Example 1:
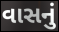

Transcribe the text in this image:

વાસનું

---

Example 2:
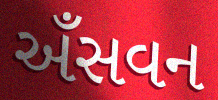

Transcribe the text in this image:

અઁસવન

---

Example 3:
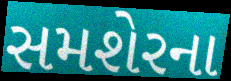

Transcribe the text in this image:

સમશેરના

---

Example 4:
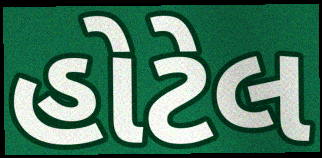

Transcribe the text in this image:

હોટેલ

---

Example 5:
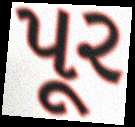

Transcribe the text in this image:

પૂર